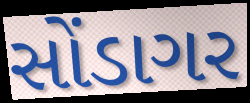
સોંડાગર